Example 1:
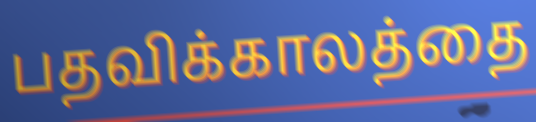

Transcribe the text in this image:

பதவிக்காலத்தை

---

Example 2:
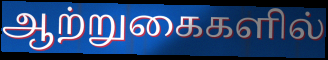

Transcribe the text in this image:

ஆற்றுகைகளில்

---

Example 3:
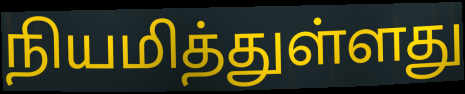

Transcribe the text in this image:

நியமித்துள்ளது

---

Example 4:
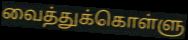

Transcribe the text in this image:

வைத்துக்கொள்ளு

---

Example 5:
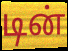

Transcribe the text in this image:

டின்